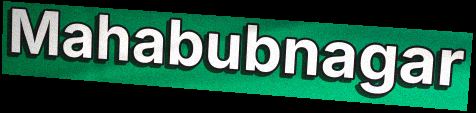
Mahabubnagar